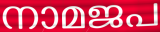
നാമജപ